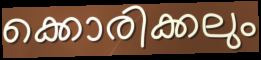
ക്കൊരിക്കലും